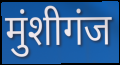
मुंशीगंज